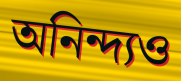
অনিন্দ্যও